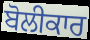
ਬੋਲੀਕਾਰ